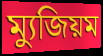
ম্যুজিয়ম